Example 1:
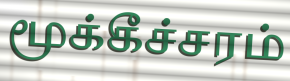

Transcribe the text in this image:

மூக்கீச்சரம்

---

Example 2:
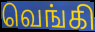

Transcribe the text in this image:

வெங்கி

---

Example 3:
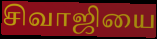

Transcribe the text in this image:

சிவாஜியை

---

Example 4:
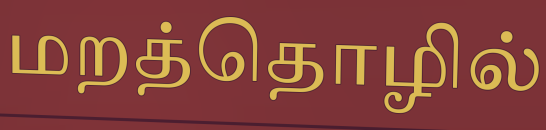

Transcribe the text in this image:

மறத்தொழில்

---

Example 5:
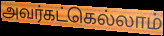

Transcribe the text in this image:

அவர்கட்கெல்லாம்